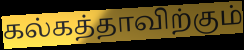
கல்கத்தாவிற்கும்